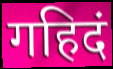
गहिदं